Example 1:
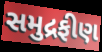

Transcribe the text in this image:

સમુદ્રફીણ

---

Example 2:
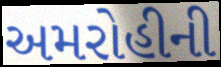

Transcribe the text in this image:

અમરોહીની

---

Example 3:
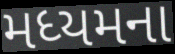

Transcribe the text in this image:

મધ્યમના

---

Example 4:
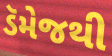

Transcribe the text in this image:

ડૅમેજથી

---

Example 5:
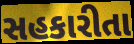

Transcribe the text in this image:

સહકારીતા